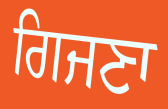
ਗਿਜਣਾ